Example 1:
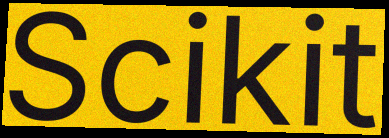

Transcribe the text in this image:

Scikit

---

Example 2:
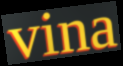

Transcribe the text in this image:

vina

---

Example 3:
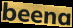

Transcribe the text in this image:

beena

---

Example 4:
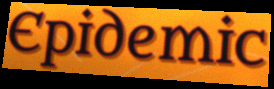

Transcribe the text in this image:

Epidemic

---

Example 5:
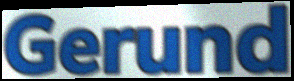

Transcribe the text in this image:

Gerund